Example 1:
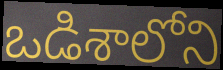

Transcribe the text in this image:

ఒడిశాలోని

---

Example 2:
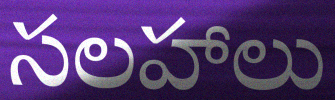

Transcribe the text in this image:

సలహాలు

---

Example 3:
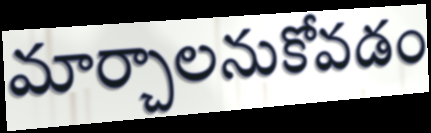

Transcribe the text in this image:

మార్చాలనుకోవడం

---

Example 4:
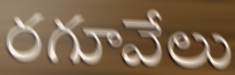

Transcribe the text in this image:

రగూవేలు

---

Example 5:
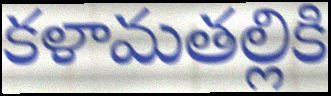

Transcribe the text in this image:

కళామతల్లికి